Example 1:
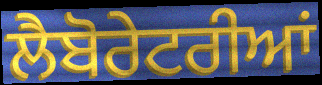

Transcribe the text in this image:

ਲੈਬੋਰੇਟਰੀਆਂ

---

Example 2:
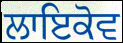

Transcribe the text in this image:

ਲਾਇਕੋਵ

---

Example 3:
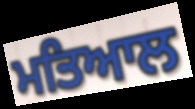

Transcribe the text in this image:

ਮਤਿਆਲ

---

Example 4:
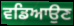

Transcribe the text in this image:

ਵਡਿਆਉਣ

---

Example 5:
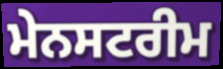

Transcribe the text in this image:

ਮੇਨਸਟਰੀਮ